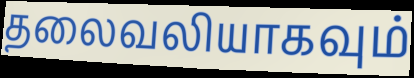
தலைவலியாகவும்